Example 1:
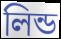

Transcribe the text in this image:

লিন্ড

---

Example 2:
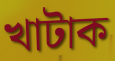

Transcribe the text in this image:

খাটাক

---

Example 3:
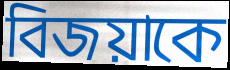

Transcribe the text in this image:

বিজয়াকে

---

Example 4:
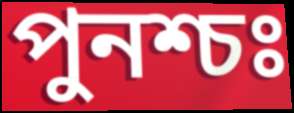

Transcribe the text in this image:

পুনশ্চঃ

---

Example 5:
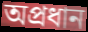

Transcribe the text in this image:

অপ্রধান